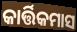
କାର୍ତ୍ତିକମାସ